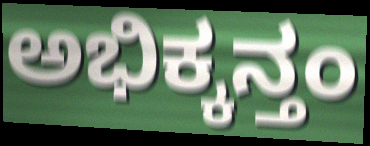
ಅಭಿಕ್ಕನ್ತಂ